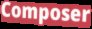
Composer